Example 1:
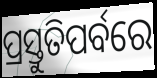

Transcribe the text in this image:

ପ୍ରସ୍ତୁତିପର୍ବରେ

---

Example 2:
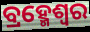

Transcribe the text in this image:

ବ୍ରହ୍ମେଶ୍ଵର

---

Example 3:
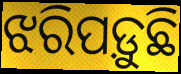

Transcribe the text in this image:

ଝରିପଡ଼ୁଛି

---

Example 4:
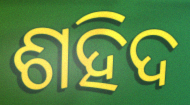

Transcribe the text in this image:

ଶହିଦ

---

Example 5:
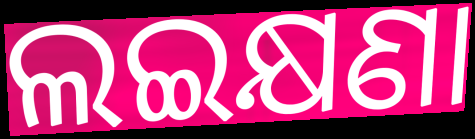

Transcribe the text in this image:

ଲଇକ୍ଷଣା